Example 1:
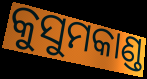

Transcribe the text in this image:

କୁସୁମକାଣ୍ଡ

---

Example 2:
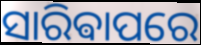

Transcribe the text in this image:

ସାରିଵାପରେ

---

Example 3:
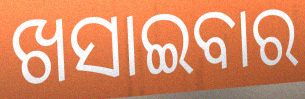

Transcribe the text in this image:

ଖସାଇବାର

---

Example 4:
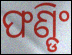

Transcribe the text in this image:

ଫଣ୍ଡିଂ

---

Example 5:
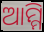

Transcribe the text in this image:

ଆମ୍ମି